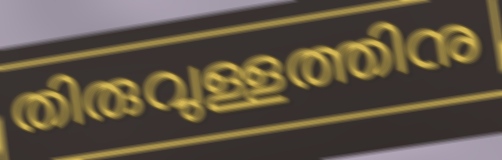
തിരുവുള്ളത്തിനു